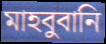
মাহবুবানি